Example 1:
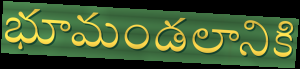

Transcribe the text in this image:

భూమండలానికి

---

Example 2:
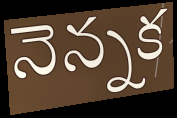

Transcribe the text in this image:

నెన్నక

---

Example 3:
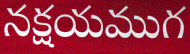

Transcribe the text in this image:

నక్షయముగ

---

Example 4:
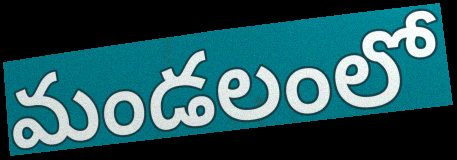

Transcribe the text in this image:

మండలంలో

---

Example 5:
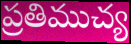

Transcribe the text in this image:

ప్రతిముచ్య